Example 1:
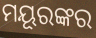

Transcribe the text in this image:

ମୟୂରଙ୍କର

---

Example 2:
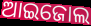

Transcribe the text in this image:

ଆଇଜୋଲ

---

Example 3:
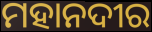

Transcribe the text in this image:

ମହାନଦୀର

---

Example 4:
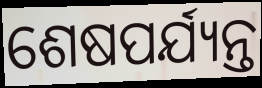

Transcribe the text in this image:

ଶେଷପର୍ଯ୍ୟନ୍ତ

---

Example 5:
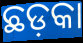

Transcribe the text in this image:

ଛଡ଼କା